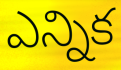
ఎన్నిక